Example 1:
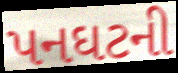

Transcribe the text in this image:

પનઘટની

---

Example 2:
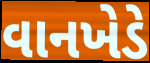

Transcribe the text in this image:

વાનખેડે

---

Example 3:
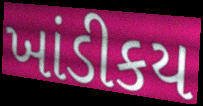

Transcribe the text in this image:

ખાંડીકય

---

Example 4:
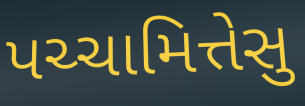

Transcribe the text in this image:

પચ્ચામિત્તેસુ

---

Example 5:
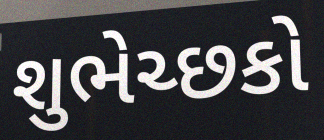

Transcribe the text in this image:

શુભેચ્છકો